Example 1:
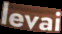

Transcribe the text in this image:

levai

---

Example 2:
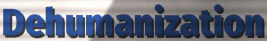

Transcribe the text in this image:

Dehumanization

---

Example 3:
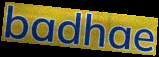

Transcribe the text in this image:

badhae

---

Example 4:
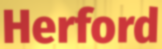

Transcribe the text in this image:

Herford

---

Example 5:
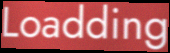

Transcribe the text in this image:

Loadding